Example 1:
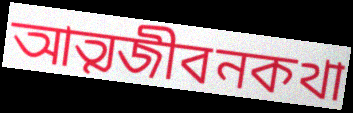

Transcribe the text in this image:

আত্মজীবনকথা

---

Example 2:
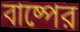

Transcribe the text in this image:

বাষ্পের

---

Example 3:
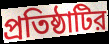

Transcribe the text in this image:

প্রতিষ্ঠাটির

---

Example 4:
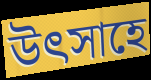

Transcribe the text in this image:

উৎসাহে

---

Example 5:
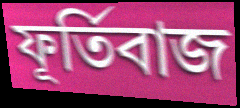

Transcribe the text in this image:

ফূর্তিবাজ